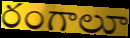
రంగాలూ